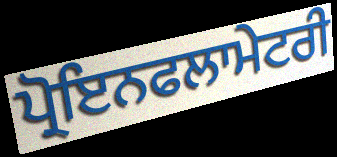
ਪ੍ਰੋਇਨਫਲਾਮੇਟਰੀ